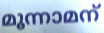
മൂന്നാമന്